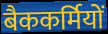
बैककर्मियों